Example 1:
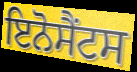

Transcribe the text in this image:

ਇਨੋਸੈਂਟਸ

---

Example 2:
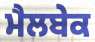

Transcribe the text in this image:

ਮੈਲਬੇਕ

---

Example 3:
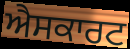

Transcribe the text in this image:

ਐਸਕਾਰਟ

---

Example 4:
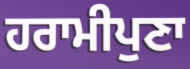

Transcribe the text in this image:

ਹਰਾਮੀਪੁਣਾ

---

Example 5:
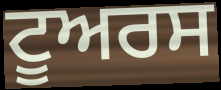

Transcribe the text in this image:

ਟੂਅਰਸ